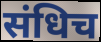
संधिच